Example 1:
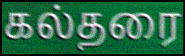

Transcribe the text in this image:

கல்தரை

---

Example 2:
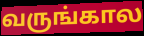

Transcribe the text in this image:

வருங்கால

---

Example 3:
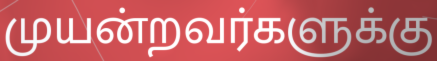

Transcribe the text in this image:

முயன்றவர்களுக்கு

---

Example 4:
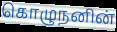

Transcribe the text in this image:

கொழுநனின்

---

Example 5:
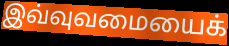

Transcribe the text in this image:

இவ்வுவமையைக்